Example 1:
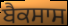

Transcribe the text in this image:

ਬੈਕਸਾਸ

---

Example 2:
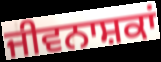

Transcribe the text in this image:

ਜੀਵਨਾਸ਼ਕਾਂ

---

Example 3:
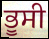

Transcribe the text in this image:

ਭੂਸੀ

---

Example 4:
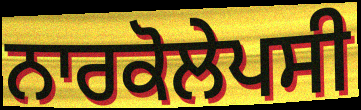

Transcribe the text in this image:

ਨਾਰਕੋਲੇਪਸੀ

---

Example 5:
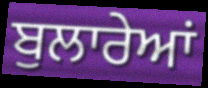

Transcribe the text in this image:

ਬੁਲਾਰੇਆਂ